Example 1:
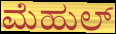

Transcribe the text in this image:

ಮೆಹುಲ್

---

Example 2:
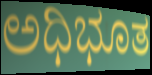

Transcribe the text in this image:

ಅಧಿಭೂತ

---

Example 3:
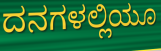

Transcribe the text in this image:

ದನಗಳಲ್ಲಿಯೂ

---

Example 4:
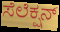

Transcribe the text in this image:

ಸೆಲೆಕ್ಷನ್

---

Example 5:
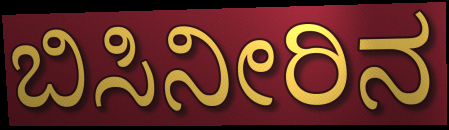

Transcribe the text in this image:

ಬಿಸಿನೀರಿನ